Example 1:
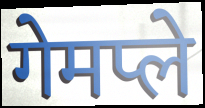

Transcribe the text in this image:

गेमप्ले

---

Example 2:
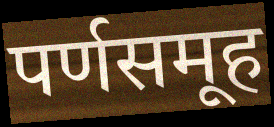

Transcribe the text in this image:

पर्णसमूह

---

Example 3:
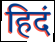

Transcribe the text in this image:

हिदं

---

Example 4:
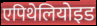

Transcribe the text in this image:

एपिथेलियोइड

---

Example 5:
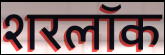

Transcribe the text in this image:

शरलॉक